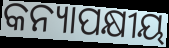
କନ୍ୟାପକ୍ଷୀୟ